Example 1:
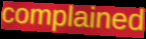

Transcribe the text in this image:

complained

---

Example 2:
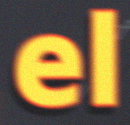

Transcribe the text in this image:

el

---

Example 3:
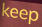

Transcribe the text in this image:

keep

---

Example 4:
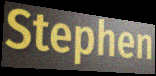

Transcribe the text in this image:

Stephen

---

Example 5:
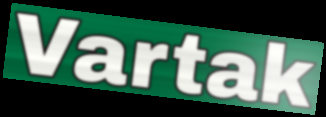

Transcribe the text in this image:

Vartak